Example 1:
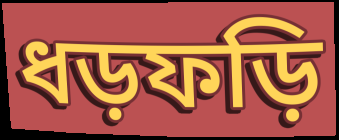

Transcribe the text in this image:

ধড়ফড়ি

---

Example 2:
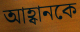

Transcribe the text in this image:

আহ্বানকে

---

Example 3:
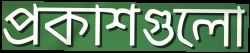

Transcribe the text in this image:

প্রকাশগুলো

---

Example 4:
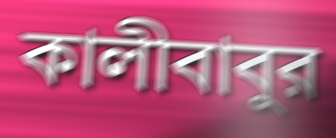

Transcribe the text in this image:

কালীবাবুর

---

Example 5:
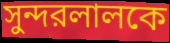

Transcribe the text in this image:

সুন্দরলালকে